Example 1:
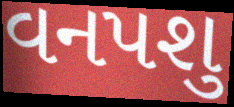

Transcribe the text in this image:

વનપશુ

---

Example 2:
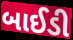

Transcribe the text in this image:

બાઈડી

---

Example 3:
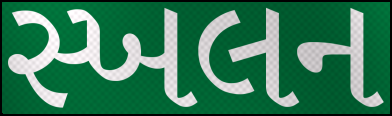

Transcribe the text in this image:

સ્ખલન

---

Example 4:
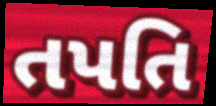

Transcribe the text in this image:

તપતિ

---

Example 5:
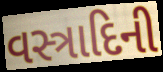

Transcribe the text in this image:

વસ્ત્રાદિની